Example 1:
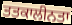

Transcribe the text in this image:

ਤਤਕਾਲੀਨਤਾ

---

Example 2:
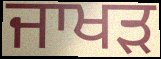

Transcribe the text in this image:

ਜਾਖੜ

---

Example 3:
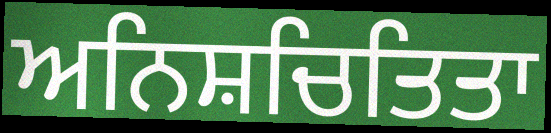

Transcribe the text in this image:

ਅਨਿਸ਼ਚਿਤਿਤਾ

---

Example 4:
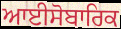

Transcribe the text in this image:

ਆਈਸੋਬਾਰਿਕ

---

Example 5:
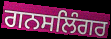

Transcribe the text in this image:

ਗਨਸਲਿੰਗਰ